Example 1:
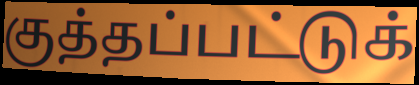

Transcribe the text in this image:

குத்தப்பட்டுக்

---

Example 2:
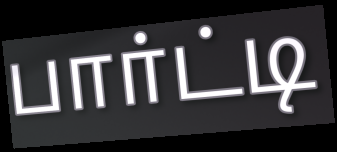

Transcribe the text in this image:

பார்ட்டி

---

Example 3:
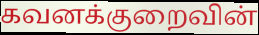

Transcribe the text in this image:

கவனக்குறைவின்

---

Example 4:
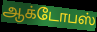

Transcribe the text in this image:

ஆக்டோபஸ்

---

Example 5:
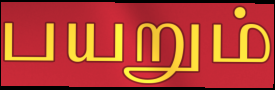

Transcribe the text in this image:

பயறும்